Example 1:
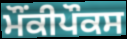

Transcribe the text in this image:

ਮੌਂਕੀਪੌਕਸ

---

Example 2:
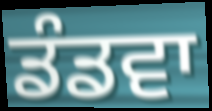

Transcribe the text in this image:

ਡੰਡਵਾ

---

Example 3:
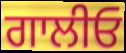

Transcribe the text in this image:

ਗਾਲੀਓ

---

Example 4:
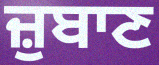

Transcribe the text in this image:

ਜ਼ੁਬਾਣ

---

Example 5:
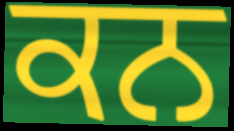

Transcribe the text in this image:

ਕਨ